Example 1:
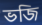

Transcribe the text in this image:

ভজি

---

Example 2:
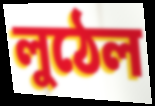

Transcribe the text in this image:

লুঠেল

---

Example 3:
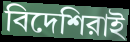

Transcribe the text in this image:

বিদেশিরাই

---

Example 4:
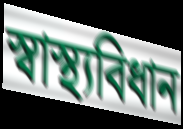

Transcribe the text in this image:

স্বাস্থ্যবিধান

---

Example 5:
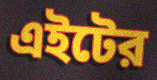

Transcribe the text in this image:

এইটের